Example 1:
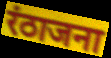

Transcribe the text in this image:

रंठाजना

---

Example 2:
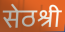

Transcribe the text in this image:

सेठश्री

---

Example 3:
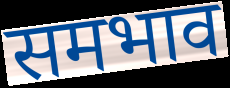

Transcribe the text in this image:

समभाव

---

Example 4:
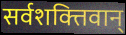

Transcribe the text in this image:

सर्वशक्तिवान्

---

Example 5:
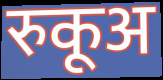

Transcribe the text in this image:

रुकूअ